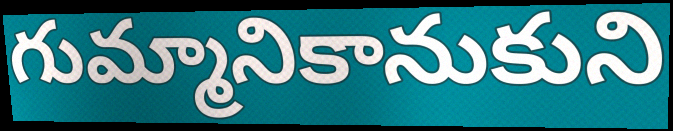
గుమ్మానికానుకుని